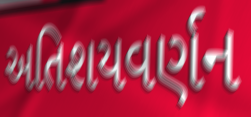
અતિશયવર્ણન